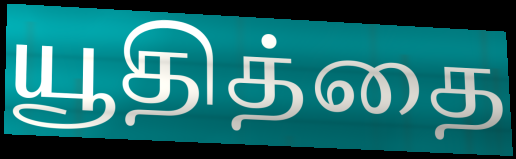
யூதித்தை